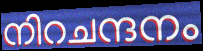
നിറചന്ദനം